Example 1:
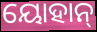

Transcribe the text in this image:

ୟୋହାନ୍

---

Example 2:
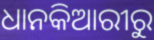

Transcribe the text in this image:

ଧାନକିଆରୀରୁ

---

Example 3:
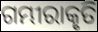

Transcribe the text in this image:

ଗମ୍ଭୀରାକୃତି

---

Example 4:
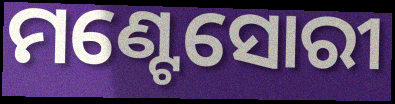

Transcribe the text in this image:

ମଣ୍ଟେସୋରୀ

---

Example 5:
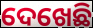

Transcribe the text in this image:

ଦେଖେଛି